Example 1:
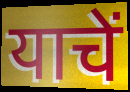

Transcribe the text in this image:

याचें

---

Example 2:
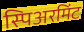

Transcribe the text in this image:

स्पिअरमिंट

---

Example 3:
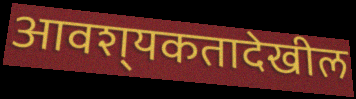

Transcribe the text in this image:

आवश्यकतादेखील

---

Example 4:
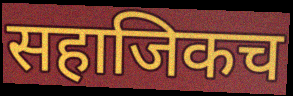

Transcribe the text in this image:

सहाजिकच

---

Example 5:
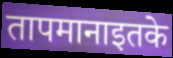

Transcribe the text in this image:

तापमानाइतके